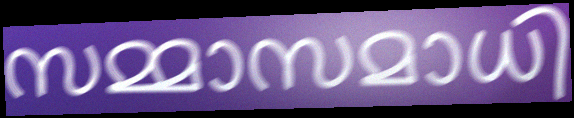
സമ്മാസമാധി